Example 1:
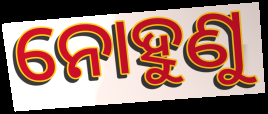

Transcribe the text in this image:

ନୋହୁଣୁ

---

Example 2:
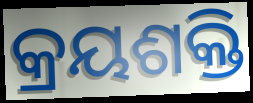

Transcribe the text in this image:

କ୍ରୟଶକ୍ତି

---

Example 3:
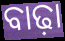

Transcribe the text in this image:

ବାଢ଼ା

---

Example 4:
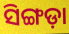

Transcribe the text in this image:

ସିଙ୍ଗଡ଼ା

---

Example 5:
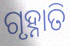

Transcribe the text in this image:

ଗୃହ୍ନାତି